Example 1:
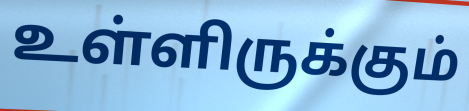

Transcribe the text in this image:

உள்ளிருக்கும்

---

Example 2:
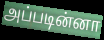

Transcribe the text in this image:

அப்படின்னா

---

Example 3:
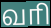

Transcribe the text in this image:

வரி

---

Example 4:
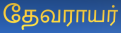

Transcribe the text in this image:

தேவராயர்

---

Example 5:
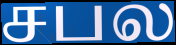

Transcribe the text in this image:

சபல